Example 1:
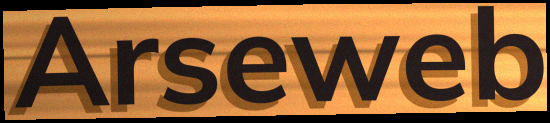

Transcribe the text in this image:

Arseweb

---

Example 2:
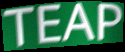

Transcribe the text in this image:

TEAP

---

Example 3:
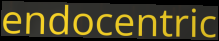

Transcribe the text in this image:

endocentric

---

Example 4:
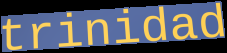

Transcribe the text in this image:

trinidad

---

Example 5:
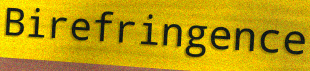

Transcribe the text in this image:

Birefringence